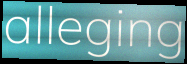
alleging